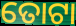
ତୋଟା